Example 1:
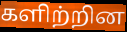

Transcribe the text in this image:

களிற்றின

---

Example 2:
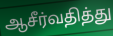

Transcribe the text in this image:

ஆசீர்வதித்து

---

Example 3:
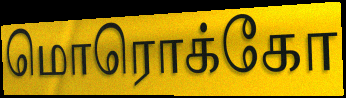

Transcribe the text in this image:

மொரொக்கோ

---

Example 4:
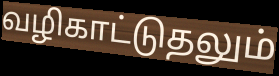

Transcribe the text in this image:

வழிகாட்டுதலும்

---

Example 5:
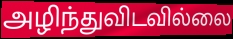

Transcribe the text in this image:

அழிந்துவிடவில்லை